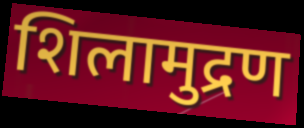
शिलामुद्रण